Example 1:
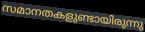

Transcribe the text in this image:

സമാനതകളുണ്ടായിരുന്നു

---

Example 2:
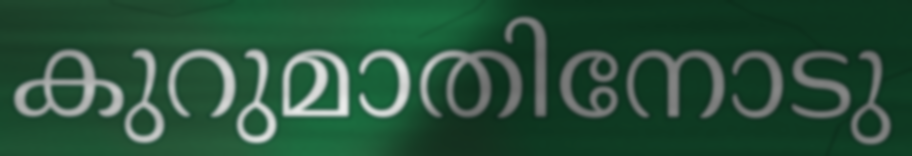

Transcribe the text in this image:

കുറുമാതിനോടു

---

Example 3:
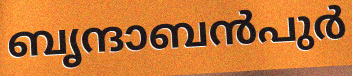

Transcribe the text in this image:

ബൃന്ദാബൻപുർ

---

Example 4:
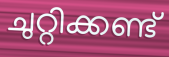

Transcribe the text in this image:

ചുറ്റിക്കണ്ട്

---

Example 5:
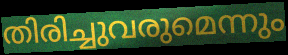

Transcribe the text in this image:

തിരിച്ചുവരുമെന്നും